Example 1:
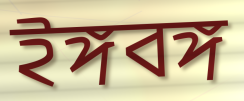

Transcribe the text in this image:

ইঙ্গবঙ্গ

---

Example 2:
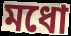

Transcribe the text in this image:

মধো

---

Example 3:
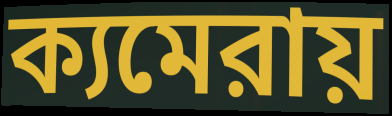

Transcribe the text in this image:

ক্যমেরায়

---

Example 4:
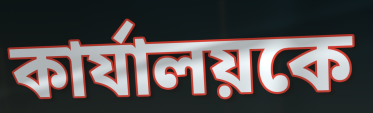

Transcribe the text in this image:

কার্যালয়কে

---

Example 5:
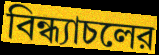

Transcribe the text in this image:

বিন্ধ্যাচলের